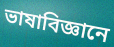
ভাষাবিজ্ঞানে